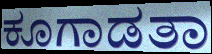
ಕೂಗಾಡತಾ